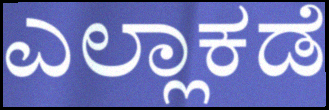
ಎಲ್ಲಾಕಡೆ